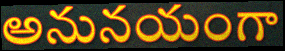
అనునయంగా